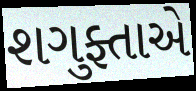
શગુફ્તાએ